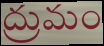
ద్రుమం